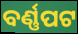
ବର୍ଣ୍ଣପଟ